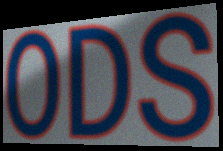
ODS